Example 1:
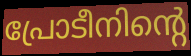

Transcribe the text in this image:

പ്രോടീനിന്റെ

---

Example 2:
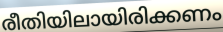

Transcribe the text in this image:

രീതിയിലായിരിക്കണം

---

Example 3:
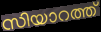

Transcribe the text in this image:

സിയാറത്ത്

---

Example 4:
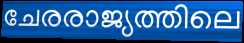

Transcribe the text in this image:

ചേരരാജ്യത്തിലെ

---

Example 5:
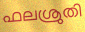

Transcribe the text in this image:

ഫലശ്രുതി